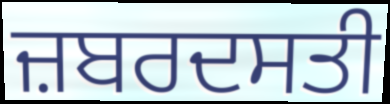
ਜ਼ਬਰਦਸਤੀ